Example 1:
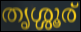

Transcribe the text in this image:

തൃശ്ശൂര്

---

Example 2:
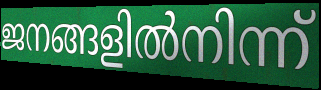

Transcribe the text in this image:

ജനങ്ങളിൽനിന്ന്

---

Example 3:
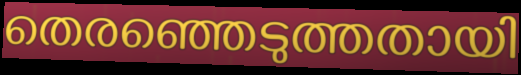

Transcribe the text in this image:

തെരഞ്ഞെടുത്തതായി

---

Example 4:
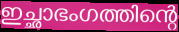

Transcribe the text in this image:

ഇച്ഛാഭംഗത്തിന്റെ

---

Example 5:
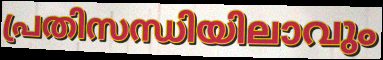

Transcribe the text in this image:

പ്രതിസന്ധിയിലാവും